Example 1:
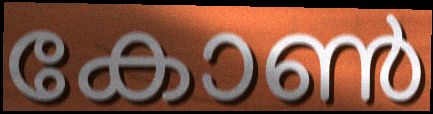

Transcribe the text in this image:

കോൺ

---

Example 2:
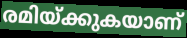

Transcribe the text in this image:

രമിയ്ക്കുകയാണ്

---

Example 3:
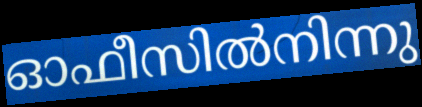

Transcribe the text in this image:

ഓഫീസിൽനിന്നു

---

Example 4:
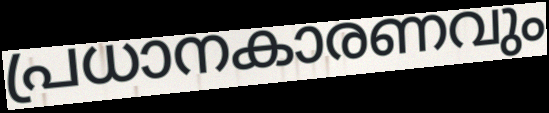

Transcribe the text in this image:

പ്രധാനകാരണവും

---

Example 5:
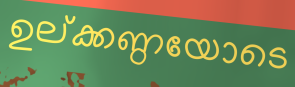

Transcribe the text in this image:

ഉല്ക്കണ്ഠയോടെ